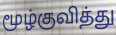
மூழ்குவித்து